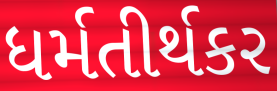
ધર્મતીર્થકર